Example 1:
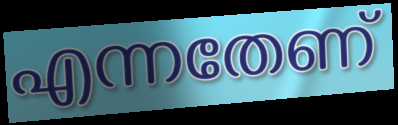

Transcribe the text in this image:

എന്നതേണ്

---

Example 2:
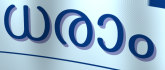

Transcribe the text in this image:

ധരാം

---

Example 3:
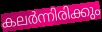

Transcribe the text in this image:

കലർന്നിരിക്കും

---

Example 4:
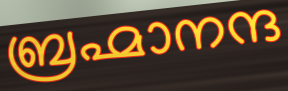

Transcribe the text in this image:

ബ്രഹ്മാനന്ദ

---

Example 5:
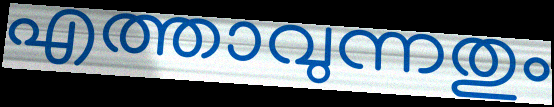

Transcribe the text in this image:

എത്താവുന്നതും